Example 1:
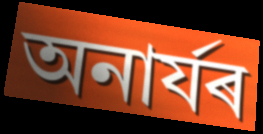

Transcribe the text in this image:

অনাৰ্যৰ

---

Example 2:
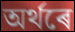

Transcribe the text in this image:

অৰ্থৰে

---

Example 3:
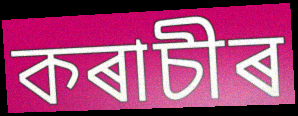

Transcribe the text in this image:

কৰাচীৰ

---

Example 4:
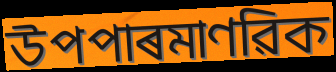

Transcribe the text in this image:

উপপাৰমাণৱিক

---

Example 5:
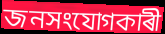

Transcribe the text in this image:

জনসংযোগকাৰী